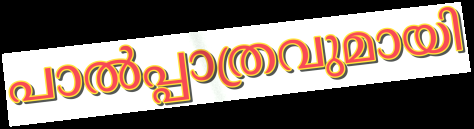
പാൽപ്പാത്രവുമായി